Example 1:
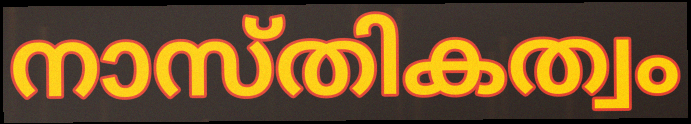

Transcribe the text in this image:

നാസ്തികത്വം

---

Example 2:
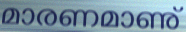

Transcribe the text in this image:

മാരണമാണു്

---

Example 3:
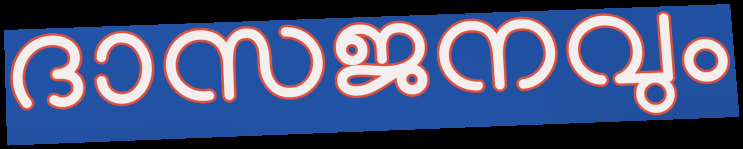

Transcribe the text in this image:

ദാസജനവും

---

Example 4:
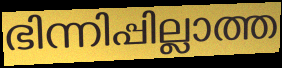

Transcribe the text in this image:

ഭിന്നിപ്പില്ലാത്ത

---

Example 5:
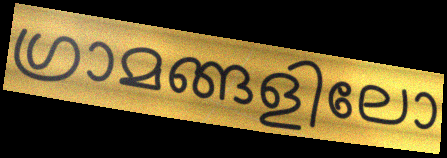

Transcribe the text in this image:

ഗ്രാമങ്ങളിലോ